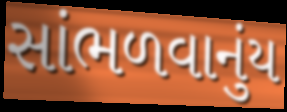
સાંભળવાનુંય